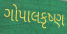
ગોપાલકૃષ્ણ